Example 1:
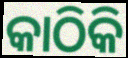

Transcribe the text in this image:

କାଠିକି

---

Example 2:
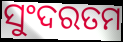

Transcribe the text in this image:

ସୁଂଦରତମ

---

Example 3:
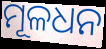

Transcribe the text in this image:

ମୂଳଧନ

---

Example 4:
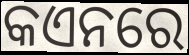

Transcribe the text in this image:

କଏନରେ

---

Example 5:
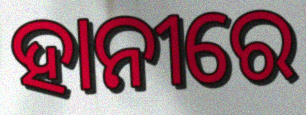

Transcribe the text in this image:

ହାନୀରେ